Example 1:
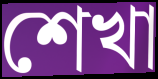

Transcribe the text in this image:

শেখা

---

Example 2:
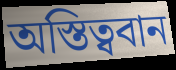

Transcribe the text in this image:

অস্তিত্ববান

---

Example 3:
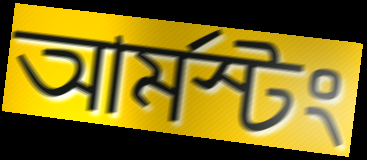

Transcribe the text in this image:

আর্মস্টং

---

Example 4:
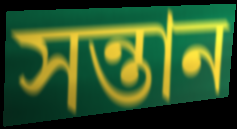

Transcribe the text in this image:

সন্তান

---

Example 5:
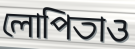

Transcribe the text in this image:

লোপিতাও